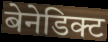
बेनेडिक्ट